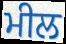
ਮੀਲ